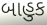
બાહુક